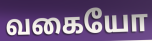
வகையோ